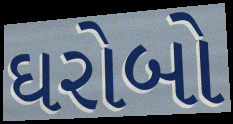
ઘરોબો